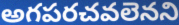
అగపరచవలెనని